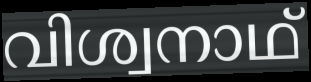
വിശ്വനാഥ്